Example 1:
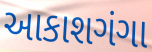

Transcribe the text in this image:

આકાશગંગા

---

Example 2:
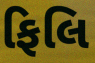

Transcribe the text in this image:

ફિલિ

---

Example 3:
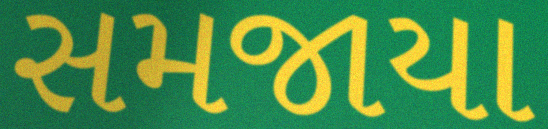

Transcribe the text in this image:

સમજાયા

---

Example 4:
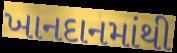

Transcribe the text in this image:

ખાનદાનમાંથી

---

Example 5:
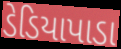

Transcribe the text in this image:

ડેડિયાપાડા